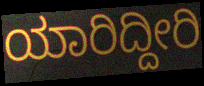
ಯಾರಿದ್ದೀರಿ